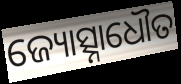
ଜ୍ୟୋତ୍ସ୍ନାଧୌତ